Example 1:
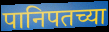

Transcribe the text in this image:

पानिपतच्या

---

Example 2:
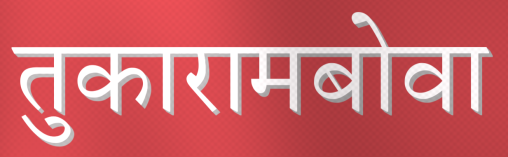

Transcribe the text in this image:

तुकारामबोवा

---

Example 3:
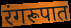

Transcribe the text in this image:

रंगरूपात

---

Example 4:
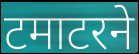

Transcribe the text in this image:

टमाटरने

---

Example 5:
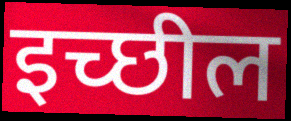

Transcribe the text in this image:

इच्छील